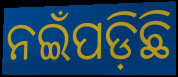
ନଇଁପଡ଼ିଛି